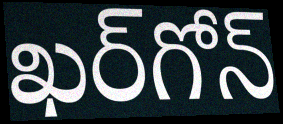
ఖర్‌గోన్